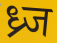
ध्र्ज